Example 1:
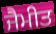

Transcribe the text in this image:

ਜੈਮੀਤ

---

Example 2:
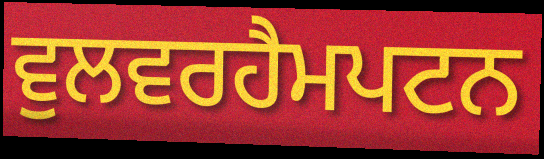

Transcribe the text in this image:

ਵੁਲਵਰਹੈਮਪਟਨ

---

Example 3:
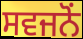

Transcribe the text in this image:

ਸਵਜਨੋਂ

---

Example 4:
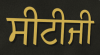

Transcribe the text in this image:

ਸੀਟੀਜੀ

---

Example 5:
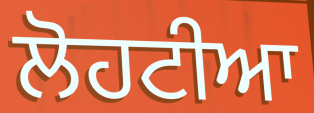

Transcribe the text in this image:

ਲੋਹਟੀਆ